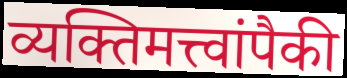
व्यक्तिमत्त्वांपैकी